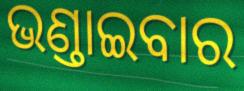
ଭଣ୍ଡାଇବାର